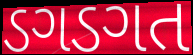
ડગડગત